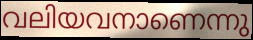
വലിയവനാണെന്നു